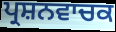
ਪ੍ਰਸ਼ਨਵਾਚਕ